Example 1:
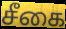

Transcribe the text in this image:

சீகை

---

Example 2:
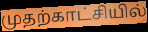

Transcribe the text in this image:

முதற்காட்சியில்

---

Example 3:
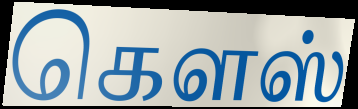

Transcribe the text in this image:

கௌஸ்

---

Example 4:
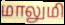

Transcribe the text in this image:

மாலுமி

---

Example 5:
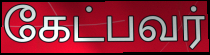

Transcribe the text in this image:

கேட்பவர்